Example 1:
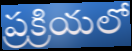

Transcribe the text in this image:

ప్రక్రియలో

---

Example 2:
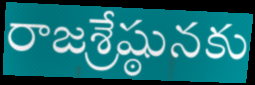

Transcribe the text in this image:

రాజశ్రేష్ఠునకు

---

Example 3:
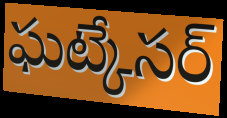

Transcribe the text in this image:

ఘట్కేసర్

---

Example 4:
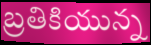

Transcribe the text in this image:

బ్రతికియున్న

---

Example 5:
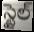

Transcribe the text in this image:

స్టైల్